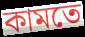
কামতে